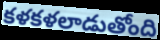
కళకళలాడుతోంది